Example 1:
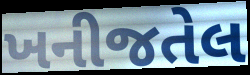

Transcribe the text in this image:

ખનીજતેલ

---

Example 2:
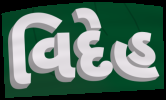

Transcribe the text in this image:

વિદેહ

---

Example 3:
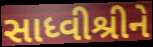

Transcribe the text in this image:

સાધ્વીશ્રીને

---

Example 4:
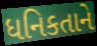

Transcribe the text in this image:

ધનિકતાને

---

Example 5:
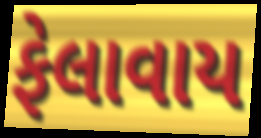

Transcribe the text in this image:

ફેલાવાય